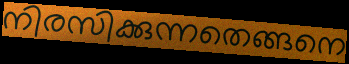
നിരസിക്കുന്നതെങ്ങനെ